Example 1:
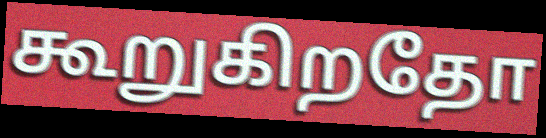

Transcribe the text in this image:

கூறுகிறதோ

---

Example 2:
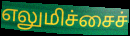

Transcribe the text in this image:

எலுமிச்சைச்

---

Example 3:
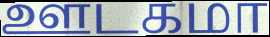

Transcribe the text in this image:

ஊடகமா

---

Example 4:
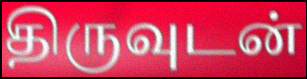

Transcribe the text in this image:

திருவுடன்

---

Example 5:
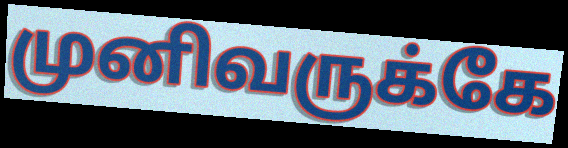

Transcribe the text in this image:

முனிவருக்கே